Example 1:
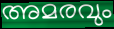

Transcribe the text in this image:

അമരവും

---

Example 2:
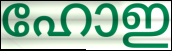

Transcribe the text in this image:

ഹോഇ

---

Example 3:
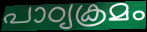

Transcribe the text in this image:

പാഠ്യക്രമം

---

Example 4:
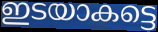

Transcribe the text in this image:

ഇടയാകട്ടെ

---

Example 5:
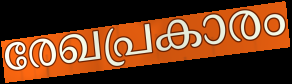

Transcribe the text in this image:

രേഖപ്രകാരം